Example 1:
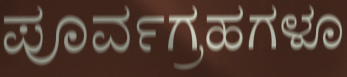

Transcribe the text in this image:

ಪೂರ್ವಗ್ರಹಗಳೂ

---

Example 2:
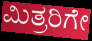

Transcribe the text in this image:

ಮಿತ್ರರಿಗೇ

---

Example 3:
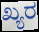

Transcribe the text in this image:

ಖ್ಯರ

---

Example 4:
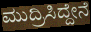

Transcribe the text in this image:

ಮುದ್ರಿಸಿದ್ದೇನೆ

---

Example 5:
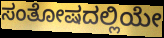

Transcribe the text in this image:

ಸಂತೋಷದಲ್ಲಿಯೇ